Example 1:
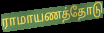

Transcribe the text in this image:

ராமாயணத்தோடு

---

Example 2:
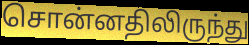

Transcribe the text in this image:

சொன்னதிலிருந்து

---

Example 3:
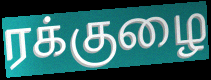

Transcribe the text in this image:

ரக்குழை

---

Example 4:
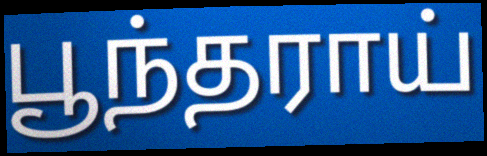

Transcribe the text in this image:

பூந்தராய்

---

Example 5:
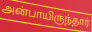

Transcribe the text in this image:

அன்பாயிருந்தார்